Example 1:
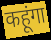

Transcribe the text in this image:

कहूंगा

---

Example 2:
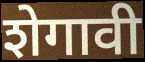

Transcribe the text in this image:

शेगावी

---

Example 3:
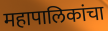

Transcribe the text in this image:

महापालिकांचा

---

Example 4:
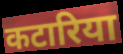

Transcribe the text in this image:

कटारिया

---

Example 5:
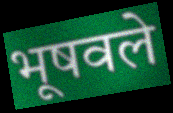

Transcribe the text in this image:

भूषवले